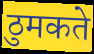
ठुमकते